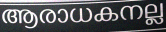
ആരാധകനല്ല